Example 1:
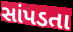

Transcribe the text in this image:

સાંપડતા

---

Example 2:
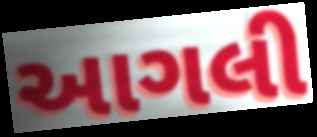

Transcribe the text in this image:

આગલી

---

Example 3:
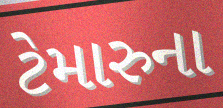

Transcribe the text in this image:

ટેમારુના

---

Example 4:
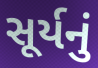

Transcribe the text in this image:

સૂર્યનું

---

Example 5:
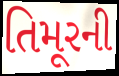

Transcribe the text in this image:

તિમૂરની